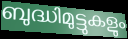
ബുദ്ധിമുട്ടുകളും